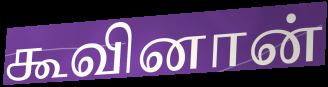
கூவினான்